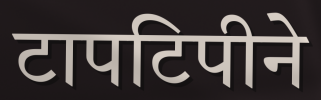
टापटिपीने